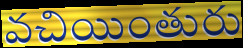
వచియింతురు